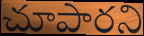
చూపారని